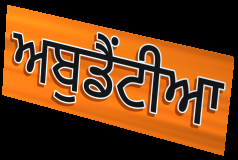
ਅਬੁਡੈਂਟੀਆ